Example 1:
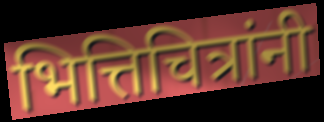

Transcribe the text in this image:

भित्तिचित्रांनी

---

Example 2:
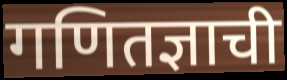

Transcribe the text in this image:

गणितज्ञाची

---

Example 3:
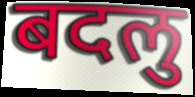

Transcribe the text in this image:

बदलु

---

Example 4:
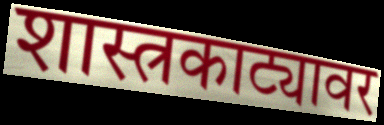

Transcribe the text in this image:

शास्त्रकाट्यावर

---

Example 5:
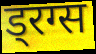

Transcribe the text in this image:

ड्रग्स